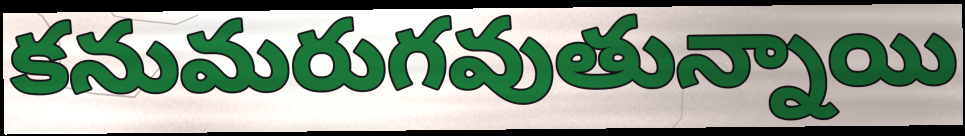
కనుమరుగవుతున్నాయి